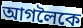
আগলৈকে